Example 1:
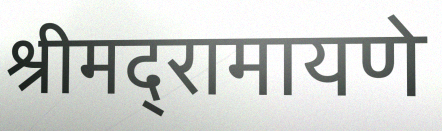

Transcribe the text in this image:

श्रीमद्‌रामायणे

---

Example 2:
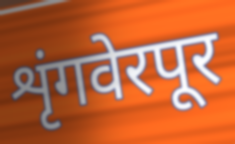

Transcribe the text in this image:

शृंगवेरपूर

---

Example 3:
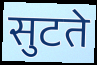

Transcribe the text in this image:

सुटते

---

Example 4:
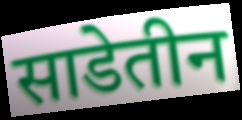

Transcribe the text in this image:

साडेतीन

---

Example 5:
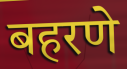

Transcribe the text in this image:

बहरणे